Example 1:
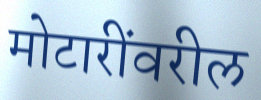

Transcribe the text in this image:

मोटारींवरील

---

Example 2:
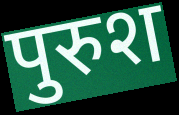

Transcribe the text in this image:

पुरुश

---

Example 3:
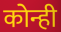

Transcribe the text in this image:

कोन्ही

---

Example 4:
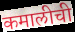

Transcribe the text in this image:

कमालीची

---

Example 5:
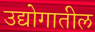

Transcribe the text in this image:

उद्योगातील